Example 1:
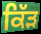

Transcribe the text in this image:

ਕਿੱੜ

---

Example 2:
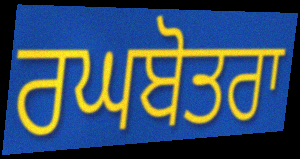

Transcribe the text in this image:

ਰਘਬੋਤਰਾ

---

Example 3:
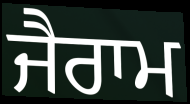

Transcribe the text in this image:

ਜੈਰਾਮ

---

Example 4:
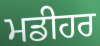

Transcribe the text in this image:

ਮਡੀਹਰ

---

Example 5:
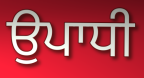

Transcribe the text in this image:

ਉਪਾਧੀ